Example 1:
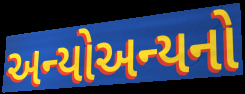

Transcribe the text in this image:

અન્યોઅન્યનો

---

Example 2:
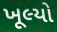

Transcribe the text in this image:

ખૂલ્યો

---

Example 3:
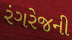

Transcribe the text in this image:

રંગરેજની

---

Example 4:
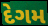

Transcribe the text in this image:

દેગમ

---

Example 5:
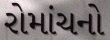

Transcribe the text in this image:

રોમાંચનો